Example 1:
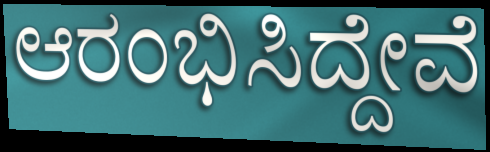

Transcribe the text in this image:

ಆರಂಭಿಸಿದ್ದೇವೆ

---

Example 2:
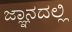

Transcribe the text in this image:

ಜ್ಞಾನದಲ್ಲಿ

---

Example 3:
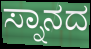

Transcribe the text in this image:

ಸ್ನಾನದ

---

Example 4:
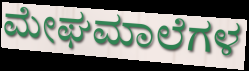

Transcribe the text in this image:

ಮೇಘಮಾಲೆಗಳ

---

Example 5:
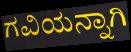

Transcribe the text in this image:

ಗವಿಯನ್ನಾಗಿ